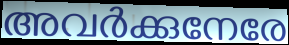
അവർക്കുനേരേ